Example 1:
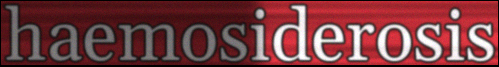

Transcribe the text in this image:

haemosiderosis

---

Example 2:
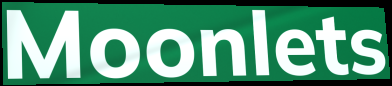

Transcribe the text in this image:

Moonlets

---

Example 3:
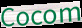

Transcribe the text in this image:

Cocom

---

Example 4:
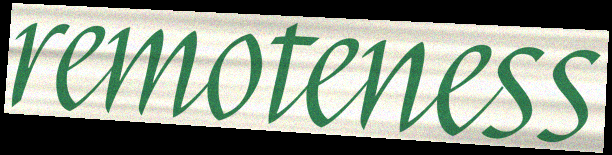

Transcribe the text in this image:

remoteness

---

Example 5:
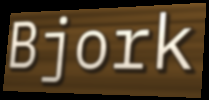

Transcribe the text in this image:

Bjork